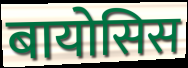
बायोसिस